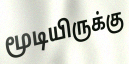
மூடியிருக்கு